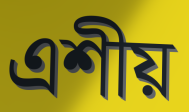
এশীয়